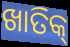
ଖାତିକ୍